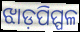
ଝାଡ଼ପିପ୍ପଳ